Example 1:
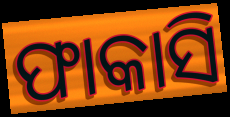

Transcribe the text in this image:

ଫାକାସି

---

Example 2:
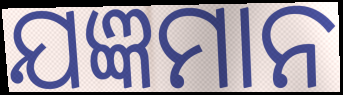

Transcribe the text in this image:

ଯଜ୍ଞମାନ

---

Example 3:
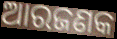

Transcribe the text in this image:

ଆରଜଣକ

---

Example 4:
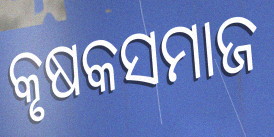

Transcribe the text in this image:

କୃଷକସମାଜ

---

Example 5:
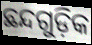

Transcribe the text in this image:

ଛନ୍ଦଗୁଡ଼ିକ